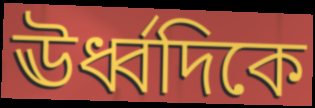
ঊর্ধ্বদিকে